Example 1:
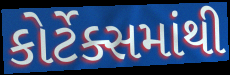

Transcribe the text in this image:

કોર્ટેક્સમાંથી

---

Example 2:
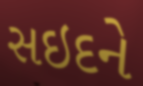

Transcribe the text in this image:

સઇદને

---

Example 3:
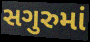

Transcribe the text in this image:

સગુરુમાં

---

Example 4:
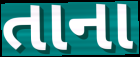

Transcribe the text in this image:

તાના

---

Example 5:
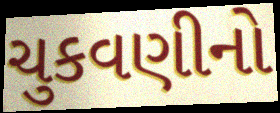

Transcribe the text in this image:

ચુકવણીનો